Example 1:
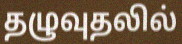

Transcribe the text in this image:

தழுவுதலில்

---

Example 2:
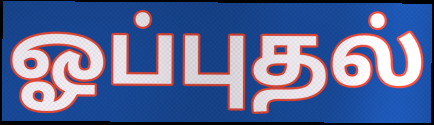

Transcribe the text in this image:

ஓப்புதல்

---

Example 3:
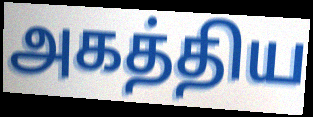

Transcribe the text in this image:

அகத்திய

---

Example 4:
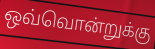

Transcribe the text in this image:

ஒவ்வொன்றுக்கு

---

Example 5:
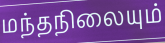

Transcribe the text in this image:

மந்தநிலையும்